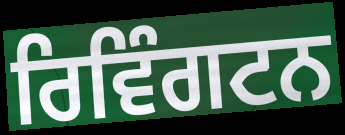
ਰਿਵਿੰਗਟਨ